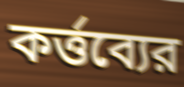
কর্ত্তব্যের